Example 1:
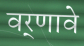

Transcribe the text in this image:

वर्णावे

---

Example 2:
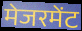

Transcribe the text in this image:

मेजरमेंट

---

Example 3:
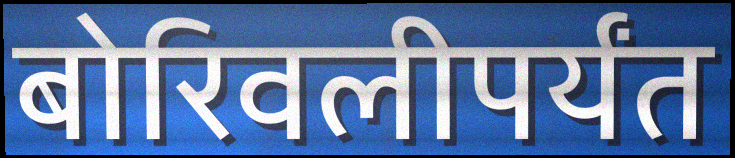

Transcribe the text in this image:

बोरिवलीपर्यंत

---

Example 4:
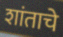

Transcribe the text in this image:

शांताचे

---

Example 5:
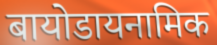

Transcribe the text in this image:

बायोडायनामिक